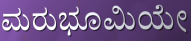
ಮರುಭೂಮಿಯೇ